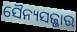
ସୈନ୍ୟସଜ୍ଜାର